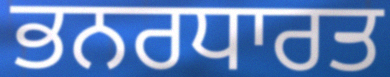
ਭਨਰਧਾਰਤ